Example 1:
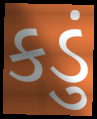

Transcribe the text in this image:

કડું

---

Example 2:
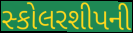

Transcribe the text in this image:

સ્કોલરશીપની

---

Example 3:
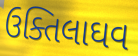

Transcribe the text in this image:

ઉક્તિલાઘવ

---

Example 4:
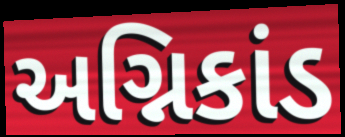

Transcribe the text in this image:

અગ્નિકાંડ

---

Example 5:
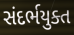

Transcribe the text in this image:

સંદર્ભયુક્ત